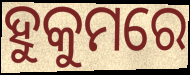
ହୁକୁମରେ